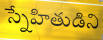
స్నేహితుడిని